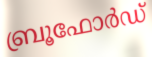
ബ്രൂഫോർഡ്